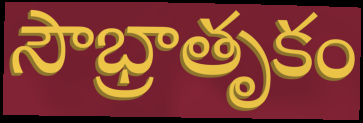
సౌభ్రాతృకం